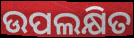
ଉପଲକ୍ଷିତ